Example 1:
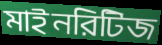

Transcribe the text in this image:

মাইনরিটিজ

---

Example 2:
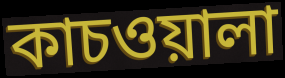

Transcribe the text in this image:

কাচওয়ালা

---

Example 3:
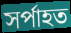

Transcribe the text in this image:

সর্পাহত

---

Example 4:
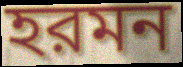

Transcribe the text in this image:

হরমন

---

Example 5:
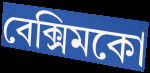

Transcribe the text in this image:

বেক্সিমকো